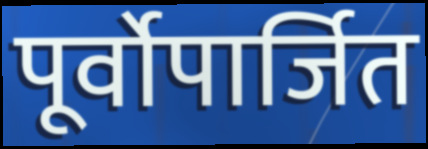
पूर्वोपार्जित